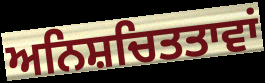
ਅਨਿਸ਼ਚਿਤਤਾਵਾਂ